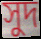
সুদ